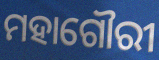
ମହାଗୌରୀ